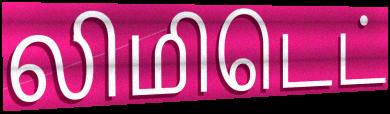
லிமிடெட்